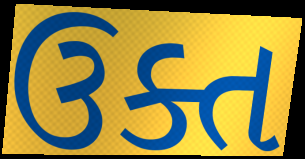
ઉક્ત